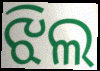
ଝିଲ